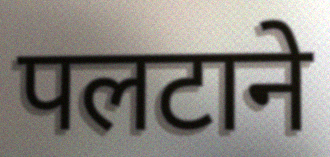
पलटाने